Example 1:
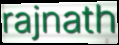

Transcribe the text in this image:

rajnath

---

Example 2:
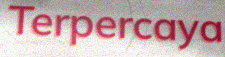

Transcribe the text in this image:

Terpercaya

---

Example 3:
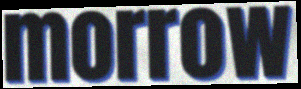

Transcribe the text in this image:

morrow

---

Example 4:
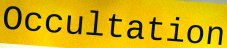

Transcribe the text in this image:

Occultation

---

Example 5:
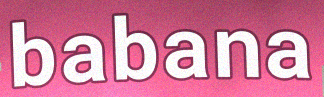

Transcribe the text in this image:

babana